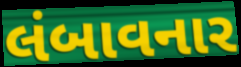
લંબાવનાર